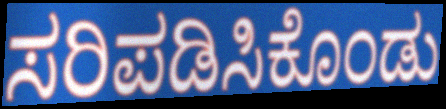
ಸರಿಪಡಿಸಿಕೊಂಡು